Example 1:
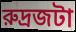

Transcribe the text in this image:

রুদ্রজটা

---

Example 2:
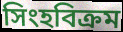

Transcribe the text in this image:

সিংহবিক্রম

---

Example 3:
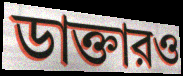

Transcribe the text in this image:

ডাক্তারও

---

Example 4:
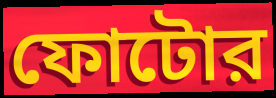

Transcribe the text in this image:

ফোটোর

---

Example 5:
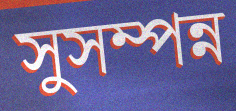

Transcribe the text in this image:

সুসম্পন্ন